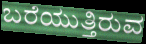
ಬರೆಯುತ್ತಿರುವ